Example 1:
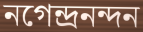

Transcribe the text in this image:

নগেন্দ্রনন্দন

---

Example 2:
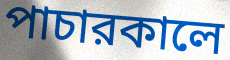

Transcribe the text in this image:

পাচারকালে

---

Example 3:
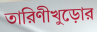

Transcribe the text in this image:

তারিণীখুড়োর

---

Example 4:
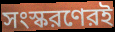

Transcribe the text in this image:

সংস্করণেরই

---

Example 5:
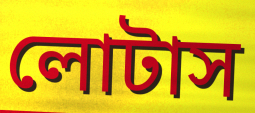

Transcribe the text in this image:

লোটাস